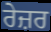
ਰੇਜ਼ਰ